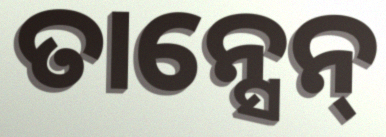
ତାନ୍ସେନ୍